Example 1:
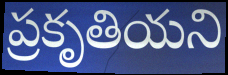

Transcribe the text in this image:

ప్రకృతియని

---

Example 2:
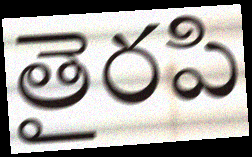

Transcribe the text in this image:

తైరపి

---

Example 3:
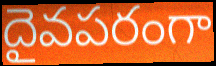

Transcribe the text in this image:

దైవపరంగా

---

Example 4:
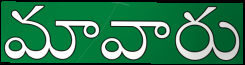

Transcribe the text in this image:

మావారు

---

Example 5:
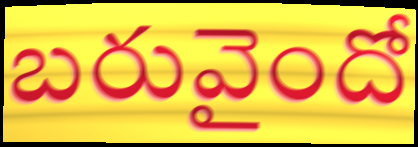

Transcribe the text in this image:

బరువైందో